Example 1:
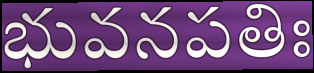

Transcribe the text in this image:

భువనపతిః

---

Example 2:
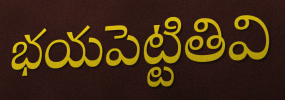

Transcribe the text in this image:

భయపెట్టితివి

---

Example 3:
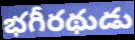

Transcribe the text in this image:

భగీరథుడు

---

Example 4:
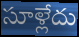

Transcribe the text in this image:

సూళ్లేదు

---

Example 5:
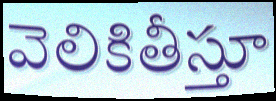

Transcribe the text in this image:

వెలికితీస్తూ